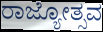
ರಾಜ್ಯೋತ್ಸವ